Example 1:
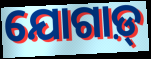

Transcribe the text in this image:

ଯୋଗାଡ଼୍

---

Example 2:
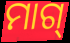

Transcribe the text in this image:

ମାଗ୍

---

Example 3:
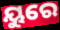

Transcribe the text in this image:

ୟୁରେ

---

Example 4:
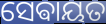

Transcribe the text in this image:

ସେଵାୟତ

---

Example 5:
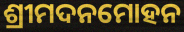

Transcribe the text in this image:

ଶ୍ରୀମଦନମୋହନ